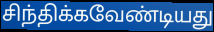
சிந்திக்கவேண்டியது